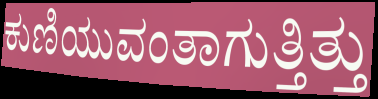
ಕುಣಿಯುವಂತಾಗುತ್ತಿತ್ತು